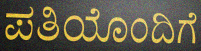
ಪತಿಯೊಂದಿಗೆ